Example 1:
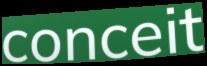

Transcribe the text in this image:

conceit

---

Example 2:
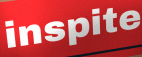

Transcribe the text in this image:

inspite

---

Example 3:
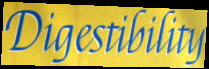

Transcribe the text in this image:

Digestibility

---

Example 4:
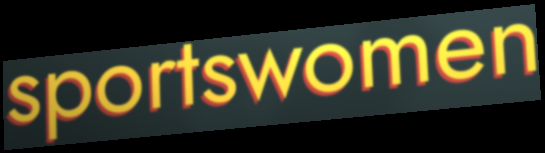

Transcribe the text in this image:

sportswomen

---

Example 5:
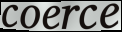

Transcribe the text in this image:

coerce